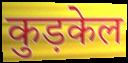
कुड़केल